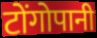
टोंगोपानी